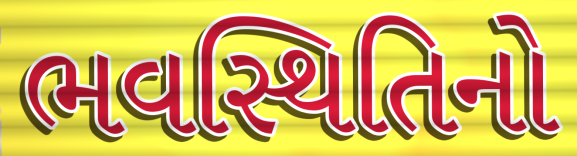
ભવસ્થિતિનો